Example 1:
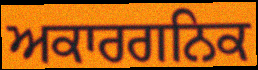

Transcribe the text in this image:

ਅਕਾਰਗਨਿਕ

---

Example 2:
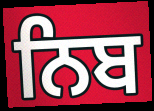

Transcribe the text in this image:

ਨਿਬ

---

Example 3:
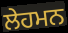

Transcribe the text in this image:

ਲੇਹਮਨ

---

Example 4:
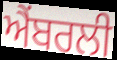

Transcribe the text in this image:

ਐਂਬਰਲੀ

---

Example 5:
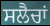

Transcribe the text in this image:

ਸਲੈਚਾਂ